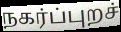
நகர்ப்புறச்